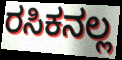
ರಸಿಕನಲ್ಲ